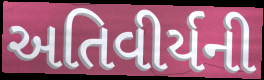
અતિવીર્યની